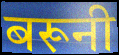
बरूनी